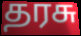
தரசு